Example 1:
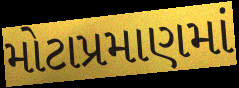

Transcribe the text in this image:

મોટાપ્રમાણમાં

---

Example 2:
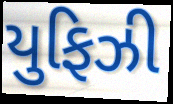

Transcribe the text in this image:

યુફિઝી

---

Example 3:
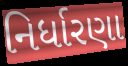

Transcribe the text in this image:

નિર્ધારણા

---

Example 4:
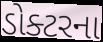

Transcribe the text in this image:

ડોક્ટરના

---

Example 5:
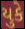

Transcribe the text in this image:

યુકે